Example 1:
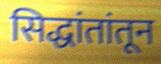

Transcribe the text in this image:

सिद्धांतांतून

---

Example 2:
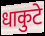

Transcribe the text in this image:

धाकुटे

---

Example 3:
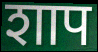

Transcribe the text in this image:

शाप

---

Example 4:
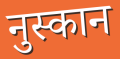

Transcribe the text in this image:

नुस्कान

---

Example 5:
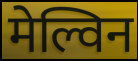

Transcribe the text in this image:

मेल्विन